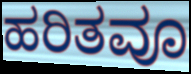
ಹರಿತವೂ